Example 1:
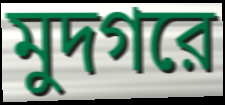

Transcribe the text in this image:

মুদগরে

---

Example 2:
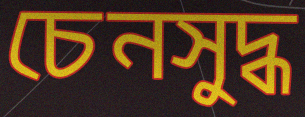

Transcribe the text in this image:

চেনসুদ্ধ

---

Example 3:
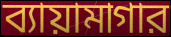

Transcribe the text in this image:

ব্যায়ামাগার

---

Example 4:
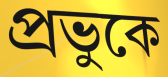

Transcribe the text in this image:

প্রভুকে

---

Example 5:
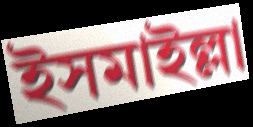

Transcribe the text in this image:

ইসমাইল্লা